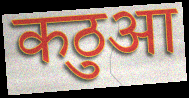
कठुआ